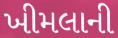
ખીમલાની